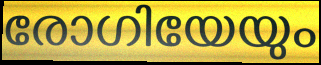
രോഗിയേയും